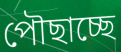
পৌছাচ্ছে